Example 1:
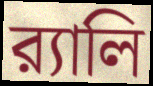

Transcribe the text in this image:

র‍্যালি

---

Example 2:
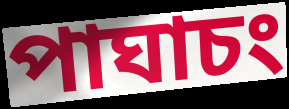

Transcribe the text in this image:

পাঘাচং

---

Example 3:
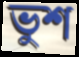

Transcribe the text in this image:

ভুশ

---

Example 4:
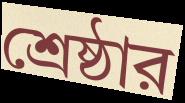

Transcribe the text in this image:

শ্রেষ্ঠার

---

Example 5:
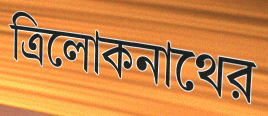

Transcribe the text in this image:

ত্রিলোকনাথের